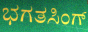
ಭಗತಸಿಂಗ್